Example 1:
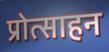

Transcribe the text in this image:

प्रोत्साहन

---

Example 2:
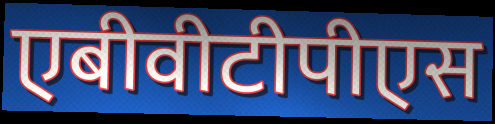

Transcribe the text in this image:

एबीवीटीपीएस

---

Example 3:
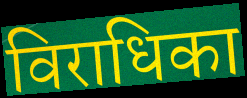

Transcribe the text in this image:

विराधिका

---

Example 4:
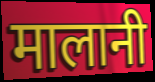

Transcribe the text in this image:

मालानी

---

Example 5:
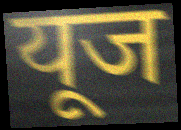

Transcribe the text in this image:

यूज